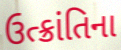
ઉત્ક્રાંતિના